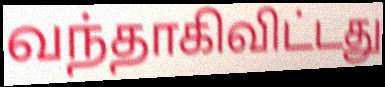
வந்தாகிவிட்டது